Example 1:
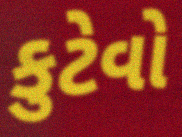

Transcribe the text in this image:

કુટેવો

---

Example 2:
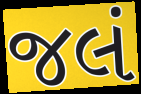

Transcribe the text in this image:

જલં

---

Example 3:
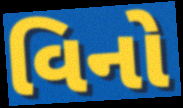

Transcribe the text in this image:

વિનો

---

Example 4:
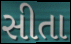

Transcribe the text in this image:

સીતા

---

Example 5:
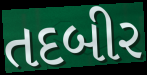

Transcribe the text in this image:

તદબીર